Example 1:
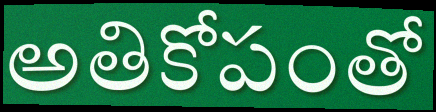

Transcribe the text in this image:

అతికోపంతో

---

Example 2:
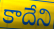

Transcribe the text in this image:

కాదేని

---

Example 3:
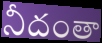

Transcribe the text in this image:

నీదంతా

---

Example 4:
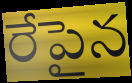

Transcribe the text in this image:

రేపైన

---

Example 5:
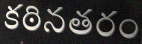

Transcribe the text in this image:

కఠినతరం